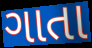
ગાતા